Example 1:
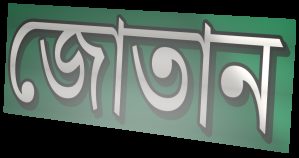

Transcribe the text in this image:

জোতান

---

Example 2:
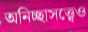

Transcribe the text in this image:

অনিচ্ছাসত্ত্বেও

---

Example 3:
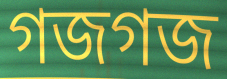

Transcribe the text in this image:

গজগজ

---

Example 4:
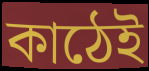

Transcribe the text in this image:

কাঠেই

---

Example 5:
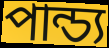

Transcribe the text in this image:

পান্ড্য